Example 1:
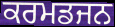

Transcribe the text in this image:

ਕਰਮਡਜਨ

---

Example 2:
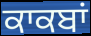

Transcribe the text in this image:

ਕਾਕਬਾਂ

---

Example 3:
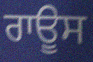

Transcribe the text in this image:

ਰਾਊਸ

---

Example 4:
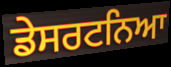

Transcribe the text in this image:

ਡੇਸਰਟਨਿਆ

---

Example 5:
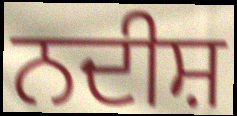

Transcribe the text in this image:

ਨਦੀਸ਼